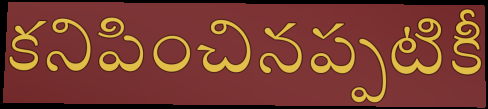
కనిపించినప్పటికీ